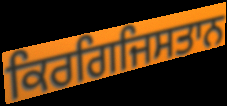
ਕਿਰਗਿਜਿਸਤਾਨ